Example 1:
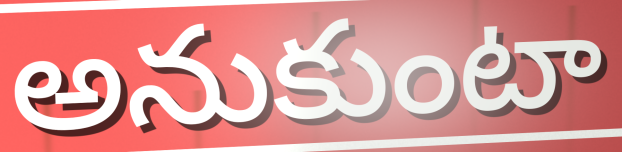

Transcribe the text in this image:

అనుకుంటా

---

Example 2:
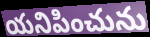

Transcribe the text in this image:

యనిపించును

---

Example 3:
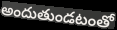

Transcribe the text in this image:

అందుతుండటంతో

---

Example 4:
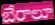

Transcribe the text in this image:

బేరాలూ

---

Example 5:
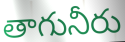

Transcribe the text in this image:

తాగునీరు